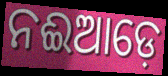
ନଈଆଡ଼େ